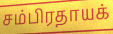
சம்பிரதாயக்